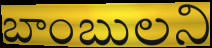
బాంబులని